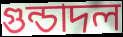
গুন্ডাদল